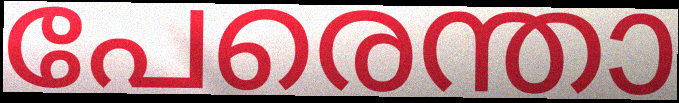
പേരെന്താ